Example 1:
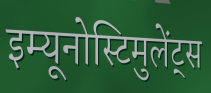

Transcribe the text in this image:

इम्यूनोस्टिमुलेंट्स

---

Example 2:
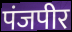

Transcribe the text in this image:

पंजपीर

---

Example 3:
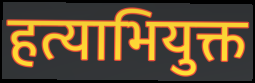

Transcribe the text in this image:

हत्याभियुक्त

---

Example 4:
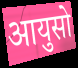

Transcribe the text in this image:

आयुसो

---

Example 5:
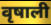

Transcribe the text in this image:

वृषाली